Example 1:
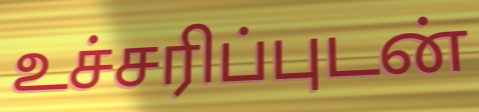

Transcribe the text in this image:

உச்சரிப்புடன்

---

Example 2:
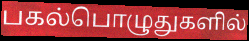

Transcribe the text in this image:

பகல்பொழுதுகளில்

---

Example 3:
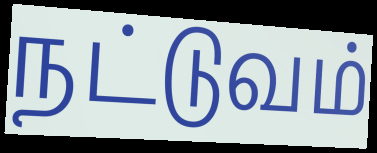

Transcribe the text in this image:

நட்டுவம்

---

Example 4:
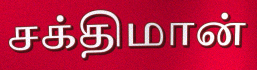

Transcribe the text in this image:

சக்திமான்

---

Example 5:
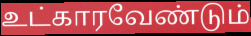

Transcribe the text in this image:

உட்காரவேண்டும்